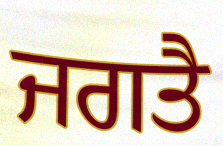
ਜਗਤੈ